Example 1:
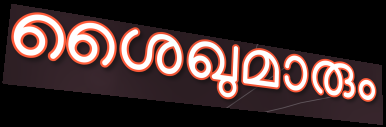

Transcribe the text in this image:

ശൈഖുമാരും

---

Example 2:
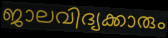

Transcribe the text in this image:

ജാലവിദ്യക്കാരും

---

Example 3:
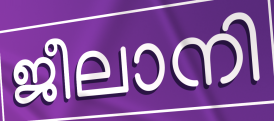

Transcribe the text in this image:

ജീലാനി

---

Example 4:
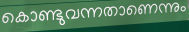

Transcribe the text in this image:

കൊണ്ടുവന്നതാണെന്നും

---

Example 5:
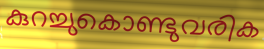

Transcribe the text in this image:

കുറച്ചുകൊണ്ടുവരിക